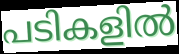
പടികളിൽ